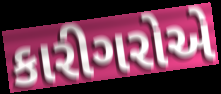
કારીગરોએ